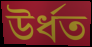
উৰ্ধত